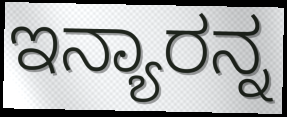
ಇನ್ಯಾರನ್ನ